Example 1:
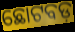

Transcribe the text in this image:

ଛୋଟବଡ଼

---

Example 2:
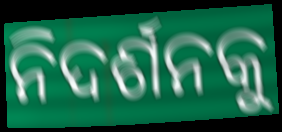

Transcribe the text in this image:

ନିଦର୍ଶନକୁ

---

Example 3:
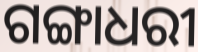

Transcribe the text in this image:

ଗଙ୍ଗାଧରୀ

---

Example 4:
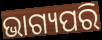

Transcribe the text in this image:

ଭାଗ୍ୟପରି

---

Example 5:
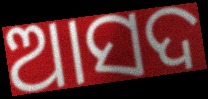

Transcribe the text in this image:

ଆସଦ